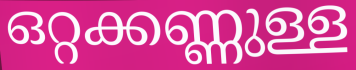
ഒറ്റക്കണ്ണുള്ള